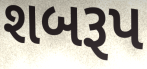
શબરૂપ